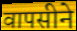
वापसीने